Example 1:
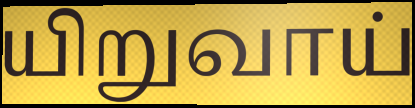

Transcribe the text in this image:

யிறுவாய்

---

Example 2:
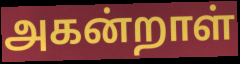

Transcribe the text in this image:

அகன்றாள்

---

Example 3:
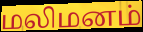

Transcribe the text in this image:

மலிமனம்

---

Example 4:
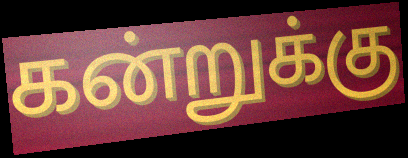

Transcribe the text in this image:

கன்றுக்கு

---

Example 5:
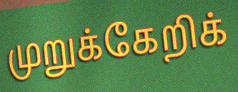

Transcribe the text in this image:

முறுக்கேறிக்